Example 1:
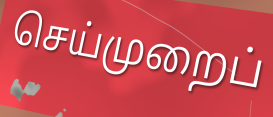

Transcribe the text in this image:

செய்முறைப்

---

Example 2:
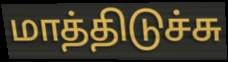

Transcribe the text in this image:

மாத்திடுச்சு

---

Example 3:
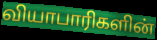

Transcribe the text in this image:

வியாபாரிகளின்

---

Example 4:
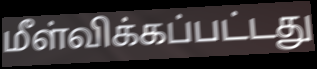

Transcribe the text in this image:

மீள்விக்கப்பட்டது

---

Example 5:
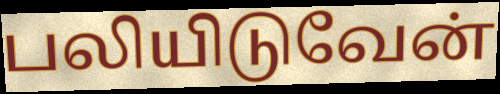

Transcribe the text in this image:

பலியிடுவேன்